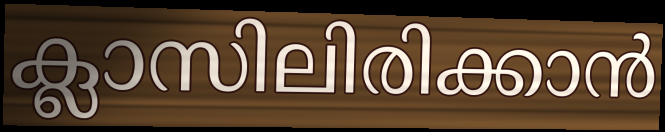
ക്ലാസിലിരിക്കാൻ